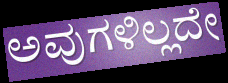
ಅವುಗಳಿಲ್ಲದೇ